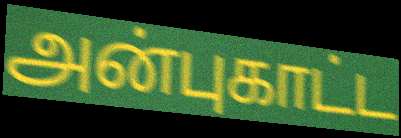
அன்புகாட்ட